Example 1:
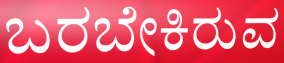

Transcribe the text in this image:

ಬರಬೇಕಿರುವ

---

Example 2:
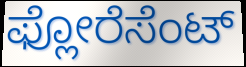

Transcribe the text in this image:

ಫ್ಲೋರೆಸೆಂಟ್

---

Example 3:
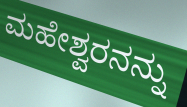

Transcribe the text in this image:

ಮಹೇಶ್ವರನನ್ನು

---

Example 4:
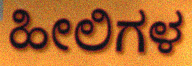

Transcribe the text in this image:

ಹೀಲಿಗಳ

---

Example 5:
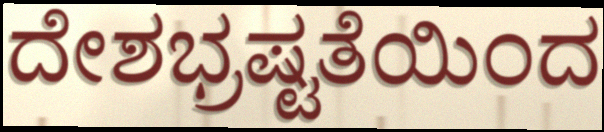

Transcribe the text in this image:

ದೇಶಭ್ರಷ್ಟತೆಯಿಂದ